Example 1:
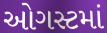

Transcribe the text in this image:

ઓગસ્ટમાં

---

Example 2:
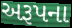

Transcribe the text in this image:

અરૂપના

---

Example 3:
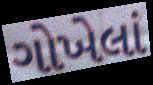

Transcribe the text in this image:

ગોખેલાં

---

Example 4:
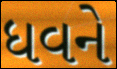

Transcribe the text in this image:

ધવને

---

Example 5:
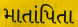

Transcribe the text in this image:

માતાંપિતા